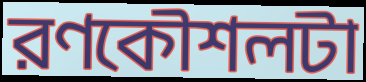
রণকৌশলটা